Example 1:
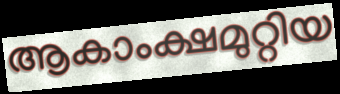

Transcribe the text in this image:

ആകാംക്ഷമുറ്റിയ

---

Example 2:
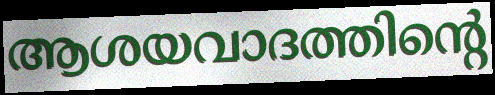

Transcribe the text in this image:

ആശയവാദത്തിന്റെ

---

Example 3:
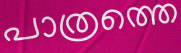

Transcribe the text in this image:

പാത്രത്തെ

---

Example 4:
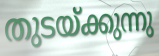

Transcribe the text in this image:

തുടയ്ക്കുന്നു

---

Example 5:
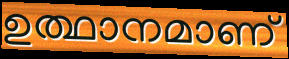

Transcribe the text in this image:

ഉത്ഥാനമാണ്